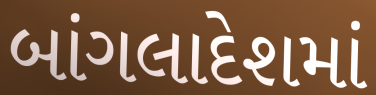
બાંગલાદેશમાં